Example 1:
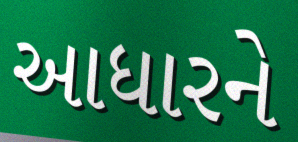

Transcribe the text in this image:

આધારને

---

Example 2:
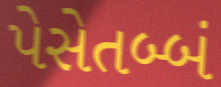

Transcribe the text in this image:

પેસેતબ્બં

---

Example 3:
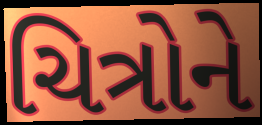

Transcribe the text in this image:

ચિત્રોને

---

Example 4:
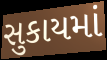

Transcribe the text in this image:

સુકાયમાં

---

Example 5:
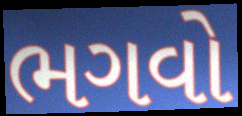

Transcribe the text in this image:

ભગવો